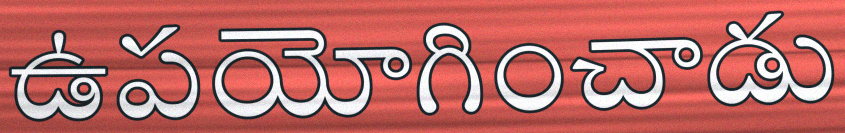
ఉపయోగించాడు